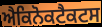
ਐਕਿਨੋਕਟੈਕਟਸ